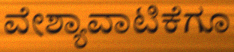
ವೇಶ್ಯಾವಾಟಿಕೆಗೂ